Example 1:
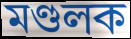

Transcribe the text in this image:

মণ্ডলক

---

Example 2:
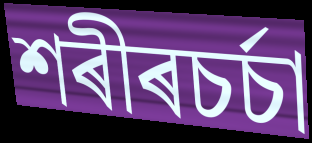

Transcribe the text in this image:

শৰীৰচৰ্চা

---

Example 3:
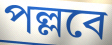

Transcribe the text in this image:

পল্লবে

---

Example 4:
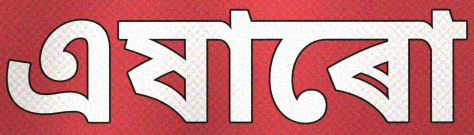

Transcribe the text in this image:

এষাৰো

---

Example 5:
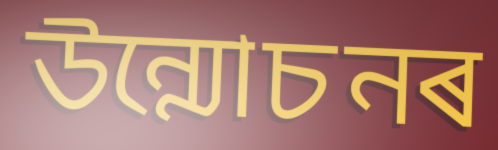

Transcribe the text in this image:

উন্মোচনৰ